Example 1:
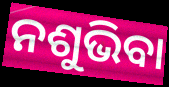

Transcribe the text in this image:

ନଶୁଭିବା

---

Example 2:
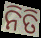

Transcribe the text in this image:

ନିତି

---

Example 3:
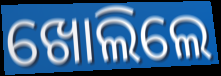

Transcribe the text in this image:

ଖୋଲିଲେ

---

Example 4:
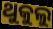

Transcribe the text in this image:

ଥୁକୁଲୁ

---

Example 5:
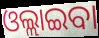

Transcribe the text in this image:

ଓଲ୍ଲାଇବା